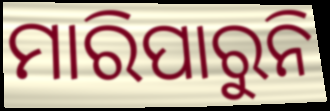
ମାରିପାରୁନି